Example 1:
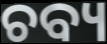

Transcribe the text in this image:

ଚବ୍ୟ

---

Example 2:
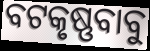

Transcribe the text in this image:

ବଟକୃଷ୍ଣବାବୁ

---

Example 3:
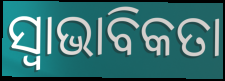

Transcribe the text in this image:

ସ୍ଵାଭାବିକତା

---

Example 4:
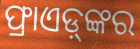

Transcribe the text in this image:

ଫ୍ରାଏଡ଼୍‍ଙ୍କର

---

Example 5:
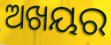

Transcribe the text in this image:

ଅଖୟର